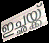
ഇച്ഛയ്ക്ക്